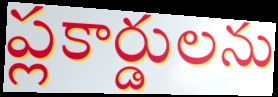
ప్లకార్డులను